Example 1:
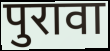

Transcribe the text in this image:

पुरावा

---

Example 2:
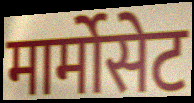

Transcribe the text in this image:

मार्मोसेट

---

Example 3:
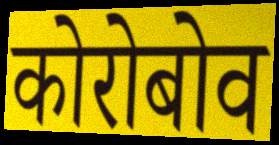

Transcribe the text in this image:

कोरोबोव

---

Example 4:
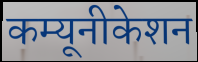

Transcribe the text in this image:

कम्यूनीकेशन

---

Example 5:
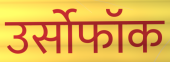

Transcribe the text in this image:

उर्सोफॉक